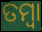
ତମ୍ୱା